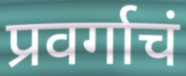
प्रवर्गाचं